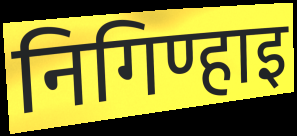
निगिण्हाइ